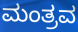
ಮಂತ್ರವ